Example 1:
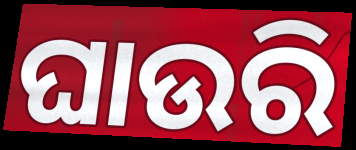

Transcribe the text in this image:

ଘାଉରି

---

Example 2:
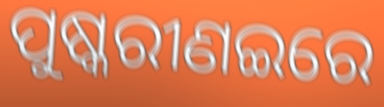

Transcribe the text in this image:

ପୁଷ୍କରୀଣଇରେ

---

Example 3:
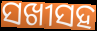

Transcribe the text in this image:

ସଖୀସହ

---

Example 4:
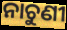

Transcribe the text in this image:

ନାଚୁଣୀ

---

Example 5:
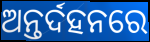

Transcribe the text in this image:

ଅନ୍ତର୍ଦହନରେ